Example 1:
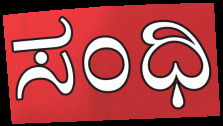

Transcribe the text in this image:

ಸಂಧಿ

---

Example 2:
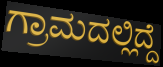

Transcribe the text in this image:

ಗ್ರಾಮದಲ್ಲಿದ್ದೆ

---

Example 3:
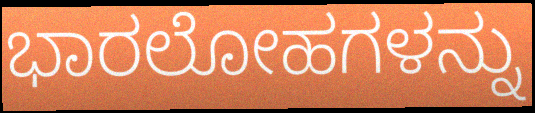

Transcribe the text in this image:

ಭಾರಲೋಹಗಳನ್ನು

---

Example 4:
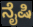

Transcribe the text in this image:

ನೈಷಿ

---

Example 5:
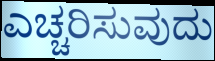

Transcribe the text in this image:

ಎಚ್ಚರಿಸುವುದು